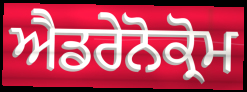
ਐਡਰੇਨੋਕ੍ਰੋਮ